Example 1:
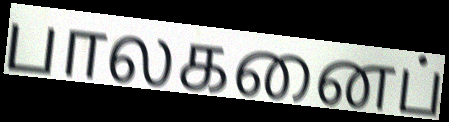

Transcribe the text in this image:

பாலகனைப்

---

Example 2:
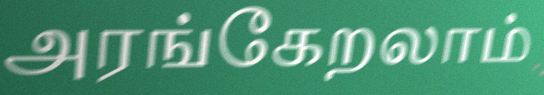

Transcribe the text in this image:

அரங்கேறலாம்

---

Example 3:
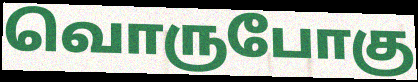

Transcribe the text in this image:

வொருபோகு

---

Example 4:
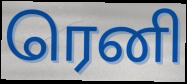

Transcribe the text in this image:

ரெனி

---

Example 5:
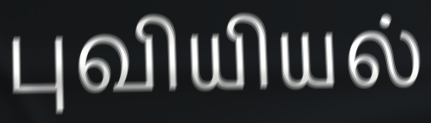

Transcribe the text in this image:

புவியியல்